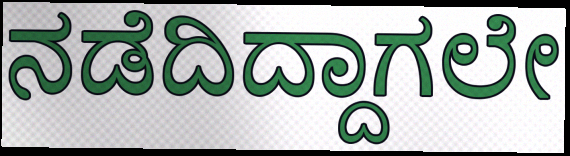
ನಡೆದಿದ್ದಾಗಲೇ